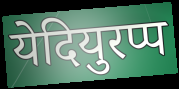
येदियुरप्प